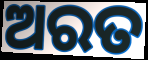
ଅରତ